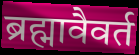
ब्रह्मावैवर्त